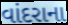
વાંદરાના